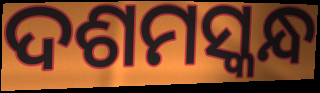
ଦଶମସ୍କନ୍ଧ